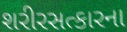
શરીરસત્કારના